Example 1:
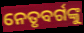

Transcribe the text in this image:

ନେତୃବର୍ଗଙ୍କୁ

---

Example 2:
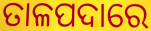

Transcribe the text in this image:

ତାଳପଦାରେ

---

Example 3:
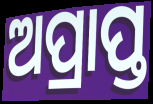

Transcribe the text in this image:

ଅପ୍ରାପ୍ତ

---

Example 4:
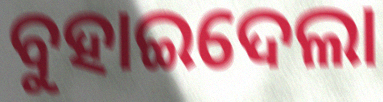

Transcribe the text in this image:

ବୁହାଇଦେଲା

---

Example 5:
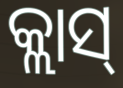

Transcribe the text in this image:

କ୍ଲାସ୍